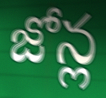
జోన్ల